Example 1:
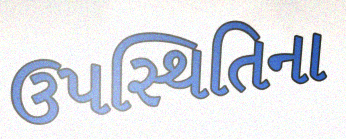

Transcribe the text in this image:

ઉપસ્થિતિના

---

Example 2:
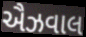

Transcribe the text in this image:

ઐઝવાલ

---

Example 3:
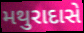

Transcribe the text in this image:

મથુરાદાસે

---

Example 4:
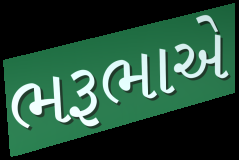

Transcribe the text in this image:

ભરૂભાએ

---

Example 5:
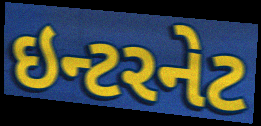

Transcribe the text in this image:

ઇન્ટરનેટ